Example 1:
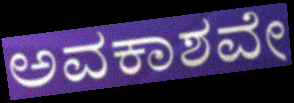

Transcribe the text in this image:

ಅವಕಾಶವೇ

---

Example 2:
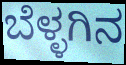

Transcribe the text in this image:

ಬೆಳ್ಳಗಿನ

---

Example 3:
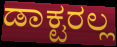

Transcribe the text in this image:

ಡಾಕ್ಟರಲ್ಲ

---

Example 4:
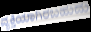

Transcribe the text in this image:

ವ್ಯಕ್ತಿಯಾಗಿರಬಹುದು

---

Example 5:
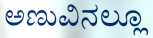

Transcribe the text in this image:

ಅಣುವಿನಲ್ಲೂ